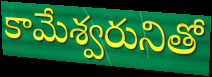
కామేశ్వరునితో